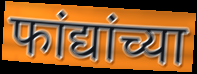
फांद्यांच्या